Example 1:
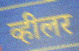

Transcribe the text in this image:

व्हीलर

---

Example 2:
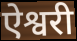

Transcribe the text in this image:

ऐश्वरी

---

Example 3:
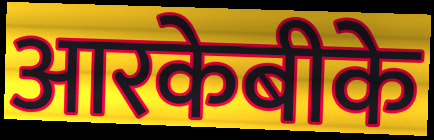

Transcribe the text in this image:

आरकेबीके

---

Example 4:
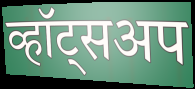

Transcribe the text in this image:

व्हॉट्सअप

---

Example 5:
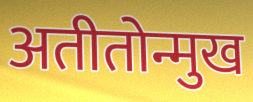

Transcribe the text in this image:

अतीतोन्मुख